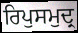
ਰਿਪੁਸਮੁਦ੍ਰ